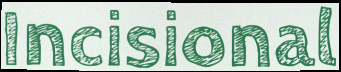
Incisional